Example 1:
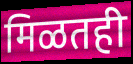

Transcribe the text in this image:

मिळतही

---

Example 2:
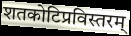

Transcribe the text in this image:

शतकोटिप्रविस्तरम्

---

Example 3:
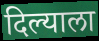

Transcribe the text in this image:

दिल्याला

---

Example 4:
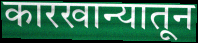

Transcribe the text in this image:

कारखान्यातून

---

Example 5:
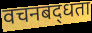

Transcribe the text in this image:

वचनबद्धता